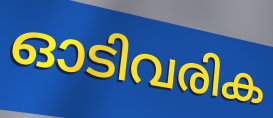
ഓടിവരിക